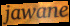
jawane